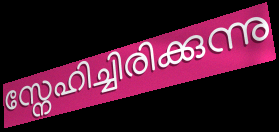
സ്നേഹിച്ചിരിക്കുന്നു